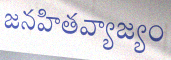
జనహితవ్యాజ్యం